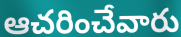
ఆచరించేవారు